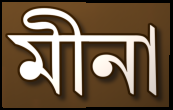
মীনা